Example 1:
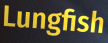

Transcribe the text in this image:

Lungfish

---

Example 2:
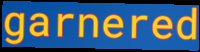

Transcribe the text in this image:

garnered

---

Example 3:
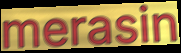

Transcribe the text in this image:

merasin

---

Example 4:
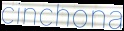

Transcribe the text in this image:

cinchona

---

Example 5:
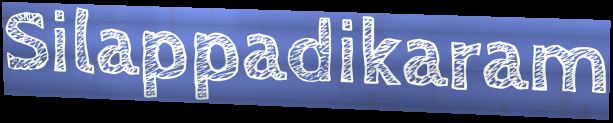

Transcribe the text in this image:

Silappadikaram